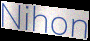
Nihon